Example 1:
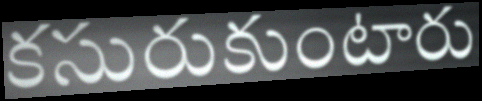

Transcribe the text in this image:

కసురుకుంటారు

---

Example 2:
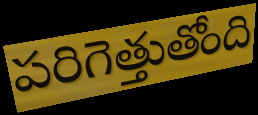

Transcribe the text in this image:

పరిగెత్తుతోంది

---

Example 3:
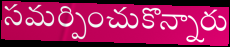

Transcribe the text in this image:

సమర్పించుకొన్నారు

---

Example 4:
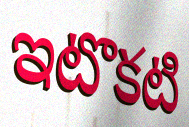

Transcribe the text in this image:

ఇటొకటి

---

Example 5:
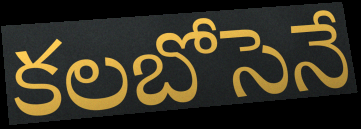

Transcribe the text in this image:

కలబోసెనే